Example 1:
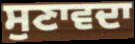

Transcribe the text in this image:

ਸੁਣਾਵਦਾ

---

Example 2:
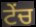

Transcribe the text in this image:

ਟੇਂਚ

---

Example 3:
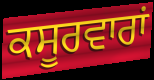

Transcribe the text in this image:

ਕਸੂਰਵਾਰਾਂ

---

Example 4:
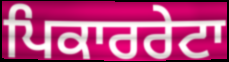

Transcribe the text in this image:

ਪਿਕਾਰਰੇਟਾ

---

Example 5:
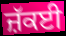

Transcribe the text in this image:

ਜ਼ੱਕਈ